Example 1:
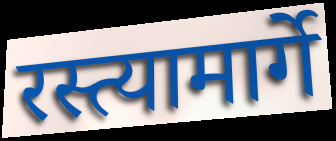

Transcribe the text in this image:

रस्त्यामार्गे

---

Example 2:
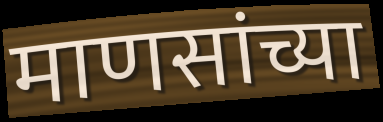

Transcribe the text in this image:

माणसांच्या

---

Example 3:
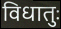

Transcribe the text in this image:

विधातुः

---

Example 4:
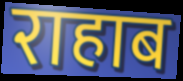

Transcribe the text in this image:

राहाब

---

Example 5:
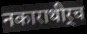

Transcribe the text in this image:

नकाराथीर्च